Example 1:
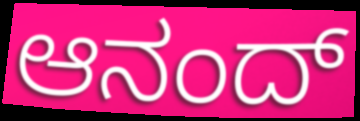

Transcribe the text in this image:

ಆನಂದ್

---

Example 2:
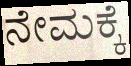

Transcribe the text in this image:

ನೇಮಕ್ಕೆ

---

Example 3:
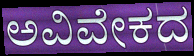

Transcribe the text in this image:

ಅವಿವೇಕದ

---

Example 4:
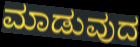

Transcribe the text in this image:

ಮಾಡುವುದ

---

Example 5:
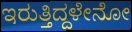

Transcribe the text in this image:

ಇರುತ್ತಿದ್ದಳೇನೋ